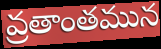
వ్రతాంతమున